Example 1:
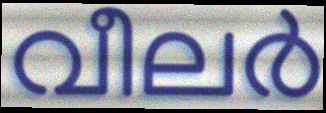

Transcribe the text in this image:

വീലർ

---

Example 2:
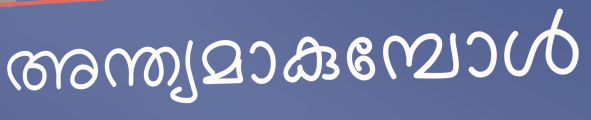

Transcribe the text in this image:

അന്ത്യമാകുമ്പോൾ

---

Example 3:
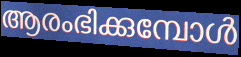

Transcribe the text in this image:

ആരംഭിക്കുമ്പോൾ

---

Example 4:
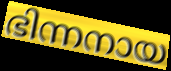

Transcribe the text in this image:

ഭിന്നനായ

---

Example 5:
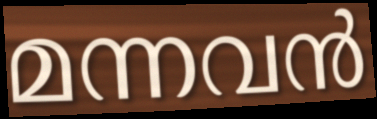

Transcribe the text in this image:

മന്നവൻ